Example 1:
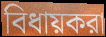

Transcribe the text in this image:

বিধায়করা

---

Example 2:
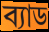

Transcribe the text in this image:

ব্যাড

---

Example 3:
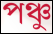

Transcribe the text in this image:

পঞ্চু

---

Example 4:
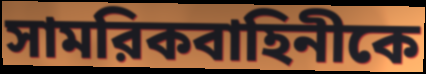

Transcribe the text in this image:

সামরিকবাহিনীকে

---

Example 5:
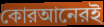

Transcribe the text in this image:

কোরআনেরই